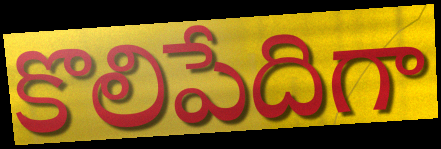
కొలిపేదిగా